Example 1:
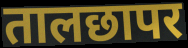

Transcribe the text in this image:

तालछापर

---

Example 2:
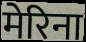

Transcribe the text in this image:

मेरिना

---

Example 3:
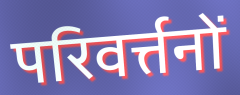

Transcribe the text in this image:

परिवर्त्तनों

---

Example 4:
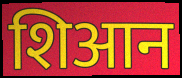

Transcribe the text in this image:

शिआन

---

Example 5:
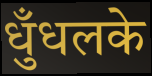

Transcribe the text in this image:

धुँधलके